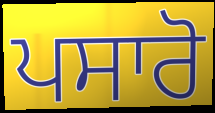
ਪਸਾਰੋ